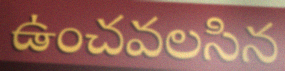
ఉంచవలసిన